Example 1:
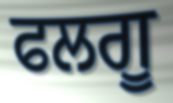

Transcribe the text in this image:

ਫਲਗੂ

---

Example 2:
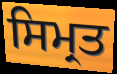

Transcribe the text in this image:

ਸਿਮ੍ਰਤ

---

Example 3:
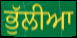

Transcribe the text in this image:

ਭੁੱਲੀਆ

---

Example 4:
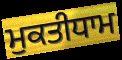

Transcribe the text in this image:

ਮੁਕਤੀਧਾਮ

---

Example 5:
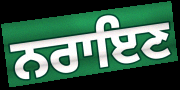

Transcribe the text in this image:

ਨਰਾਇਣ